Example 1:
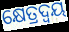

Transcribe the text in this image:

କ୍ଷେତ୍ରଦ୍ଵୟ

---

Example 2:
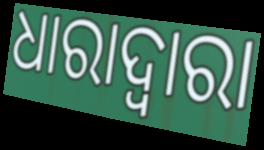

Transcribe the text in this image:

ଧାରାଦ୍ୱାରା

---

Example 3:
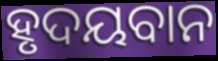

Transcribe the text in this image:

ହୃଦୟବାନ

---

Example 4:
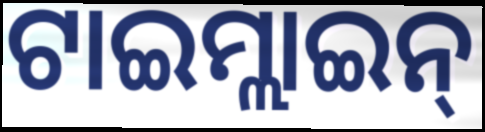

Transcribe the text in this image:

ଟାଇମ୍ଲାଇନ୍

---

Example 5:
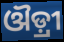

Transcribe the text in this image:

ଔଡ଼୍ରୀ